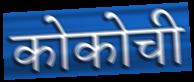
कोकोची